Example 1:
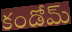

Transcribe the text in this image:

కండోమ్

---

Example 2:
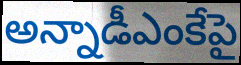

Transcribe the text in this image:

అన్నాడీఎంకేపై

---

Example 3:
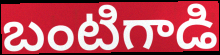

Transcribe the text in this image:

బంటిగాడి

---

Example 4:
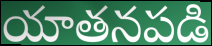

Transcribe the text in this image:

యాతనపడి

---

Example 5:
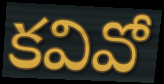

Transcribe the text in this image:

కవివో